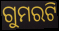
ଗୁମରଟି